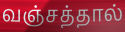
வஞ்சத்தால்